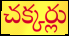
చక్కర్లు